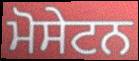
ਮੋਸੇਟਨ